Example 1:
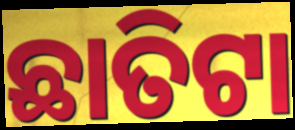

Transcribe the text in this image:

ଛାତିଟା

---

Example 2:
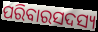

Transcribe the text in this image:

ପରିବାରସଦସ୍ୟ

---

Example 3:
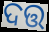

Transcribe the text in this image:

ଦତ୍ତ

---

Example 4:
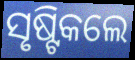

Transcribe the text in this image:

ସୃଷ୍ଟିକଲେ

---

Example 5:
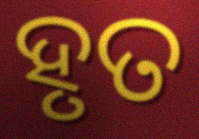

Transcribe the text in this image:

ହୃତ